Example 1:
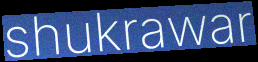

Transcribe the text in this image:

shukrawar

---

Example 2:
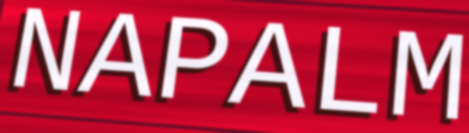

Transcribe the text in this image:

NAPALM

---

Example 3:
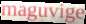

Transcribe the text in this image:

maguvige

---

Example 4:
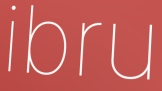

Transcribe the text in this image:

ibru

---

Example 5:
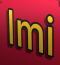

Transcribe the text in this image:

Imi